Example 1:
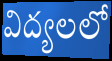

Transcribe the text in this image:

విద్యలలో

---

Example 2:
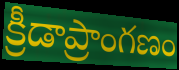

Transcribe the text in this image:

క్రీడాప్రాంగణం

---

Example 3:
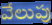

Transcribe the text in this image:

వేలుపు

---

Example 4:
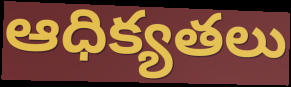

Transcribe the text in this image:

ఆధిక్యతలు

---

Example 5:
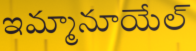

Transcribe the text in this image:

ఇమ్మానూయేల్